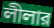
লীলার